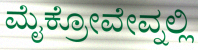
ಮೈಕ್ರೋವೇವ್ನಲ್ಲಿ